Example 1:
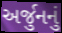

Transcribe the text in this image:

અર્જુનનું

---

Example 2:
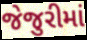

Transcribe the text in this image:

જેજુરીમાં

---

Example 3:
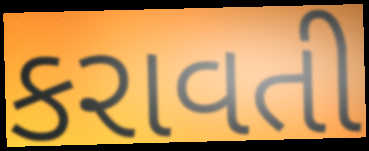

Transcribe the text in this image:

કરાવતી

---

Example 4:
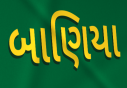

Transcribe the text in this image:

બાણિયા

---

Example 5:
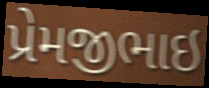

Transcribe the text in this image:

પ્રેમજીભાઇ